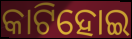
କାଟିହୋଇ